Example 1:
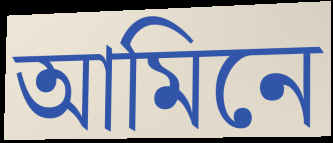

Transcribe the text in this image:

আমিনে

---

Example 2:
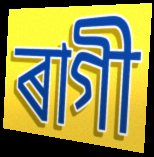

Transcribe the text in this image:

ৰাগী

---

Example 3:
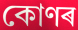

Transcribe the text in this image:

কোণৰ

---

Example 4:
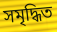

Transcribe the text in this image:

সমৃদ্ধিত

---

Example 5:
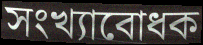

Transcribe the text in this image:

সংখ্যাবোধক